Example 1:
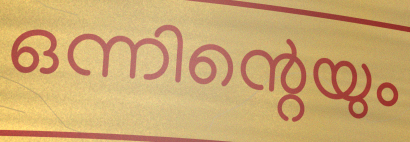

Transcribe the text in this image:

ഒന്നിന്റെയും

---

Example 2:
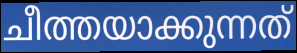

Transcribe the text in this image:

ചീത്തയാക്കുന്നത്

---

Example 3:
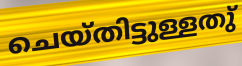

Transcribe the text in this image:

ചെയ്തിട്ടുള്ളതു്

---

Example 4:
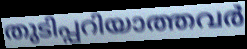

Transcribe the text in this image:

തുടിപ്പറിയാത്തവർ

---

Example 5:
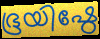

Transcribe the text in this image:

ഭൂയിഷ്ഠേ